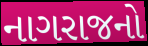
નાગરાજનો